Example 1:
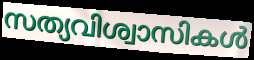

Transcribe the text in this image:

സത്യവിശ്വാസികൾ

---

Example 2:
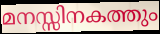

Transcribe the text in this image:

മനസ്സിനകത്തും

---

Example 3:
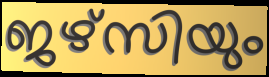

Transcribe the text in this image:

ജഴ്സിയും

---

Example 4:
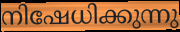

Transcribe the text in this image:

നിഷേധിക്കുന്നു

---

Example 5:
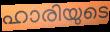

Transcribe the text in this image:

ഹാരിയുടെ